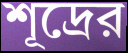
শূদ্রের